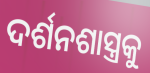
ଦର୍ଶନଶାସ୍ତ୍ରକୁ